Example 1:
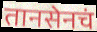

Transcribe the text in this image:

तानसेनचं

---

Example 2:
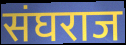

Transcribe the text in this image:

संघराज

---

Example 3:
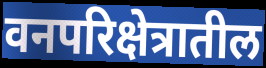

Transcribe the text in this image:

वनपरिक्षेत्रातील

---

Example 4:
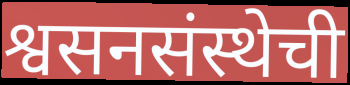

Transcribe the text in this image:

श्वसनसंस्थेची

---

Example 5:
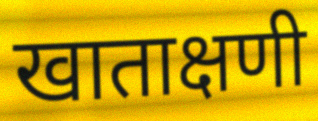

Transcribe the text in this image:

खाताक्षणी